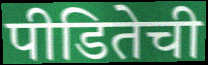
पीडितेची